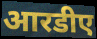
आरडीए